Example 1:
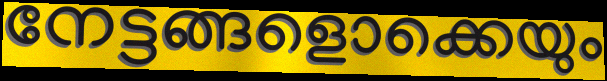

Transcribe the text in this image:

നേട്ടങ്ങളൊക്കെയും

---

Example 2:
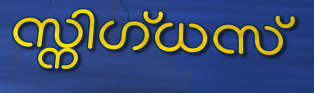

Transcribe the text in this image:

സ്നിഗ്ധസ്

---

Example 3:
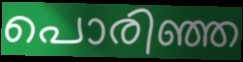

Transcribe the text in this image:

പൊരിഞ്ഞ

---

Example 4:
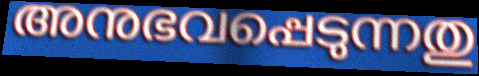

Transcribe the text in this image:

അനുഭവപ്പെടുന്നതു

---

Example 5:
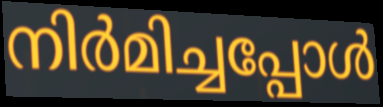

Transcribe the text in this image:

നിർമിച്ചപ്പോൾ